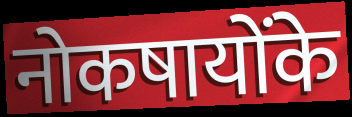
नोकषायोंके